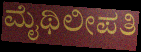
ಮೈಥಿಲೀಪತಿ